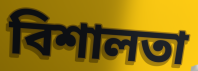
বিশালতা